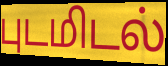
புடமிடல்